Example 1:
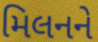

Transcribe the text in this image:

મિલનને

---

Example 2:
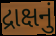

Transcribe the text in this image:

દ્રાક્ષનું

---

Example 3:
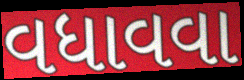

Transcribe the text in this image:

વધાવવા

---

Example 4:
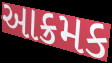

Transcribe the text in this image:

આક્રમક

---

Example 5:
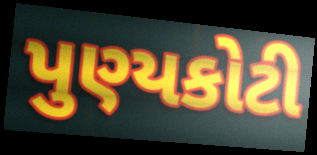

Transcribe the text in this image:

પુણ્યકોટી